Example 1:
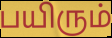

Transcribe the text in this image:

பயிரும்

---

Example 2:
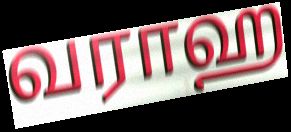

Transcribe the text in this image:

வராஹ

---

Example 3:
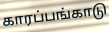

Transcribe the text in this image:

காரப்பங்காடு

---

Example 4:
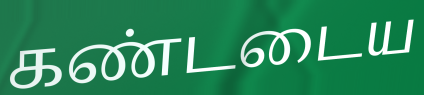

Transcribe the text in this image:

கண்டடைய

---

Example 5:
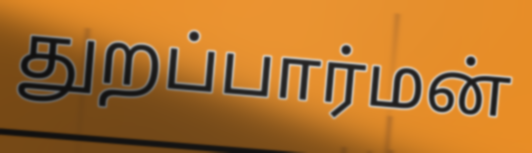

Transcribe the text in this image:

துறப்பார்மன்